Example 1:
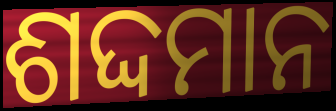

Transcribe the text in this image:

ଶଦ୍ଦମାନ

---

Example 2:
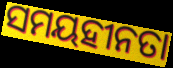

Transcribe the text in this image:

ସମୟହୀନତା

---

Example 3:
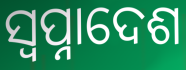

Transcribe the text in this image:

ସ୍ବପ୍ନାଦେଶ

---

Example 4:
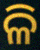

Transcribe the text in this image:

ଳି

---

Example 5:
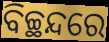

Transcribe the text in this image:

ବିଚ୍ଛନ୍ଦରେ